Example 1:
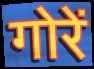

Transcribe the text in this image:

गोरें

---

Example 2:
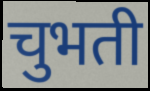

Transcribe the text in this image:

चुभती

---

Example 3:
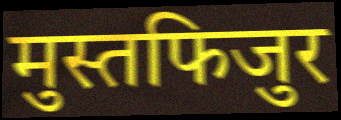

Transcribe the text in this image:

मुस्तफिजुर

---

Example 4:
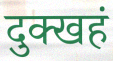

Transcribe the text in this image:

दुक्खहं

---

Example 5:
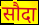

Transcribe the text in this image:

सौदा